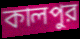
কালপুর